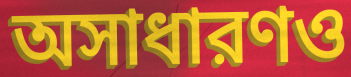
অসাধারণও